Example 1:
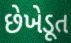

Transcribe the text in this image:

છેખેડૂત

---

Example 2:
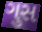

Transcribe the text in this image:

ગુસ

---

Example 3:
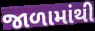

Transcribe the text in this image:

જાળામાંથી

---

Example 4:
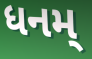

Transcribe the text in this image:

ધનમ્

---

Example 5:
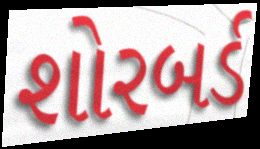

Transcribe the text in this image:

શોરબર્ડ